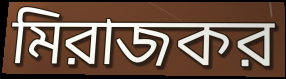
মিরাজকর